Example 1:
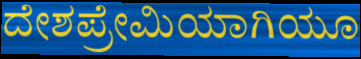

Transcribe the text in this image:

ದೇಶಪ್ರೇಮಿಯಾಗಿಯೂ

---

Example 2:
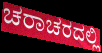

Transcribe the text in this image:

ಚರಾಚರದಲ್ಲಿ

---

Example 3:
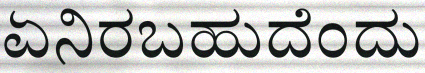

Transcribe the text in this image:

ಏನಿರಬಹುದೆಂದು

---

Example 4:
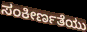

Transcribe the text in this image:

ಸಂಕೀರ್ಣತೆಯು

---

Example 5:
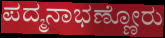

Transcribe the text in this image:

ಪದ್ಮನಾಭಣ್ಣೋರು